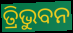
ତ୍ରିଭୁବନ